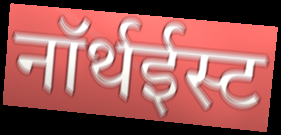
नॉर्थईस्ट